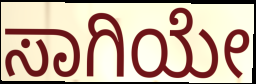
ಸಾಗಿಯೇ